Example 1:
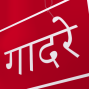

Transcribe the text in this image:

गादरे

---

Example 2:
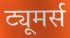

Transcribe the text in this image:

ट्यूमर्स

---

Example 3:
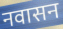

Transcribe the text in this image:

नवासन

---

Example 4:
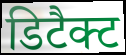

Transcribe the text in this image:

डिटैक्ट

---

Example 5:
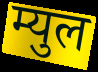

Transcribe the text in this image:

म्युल